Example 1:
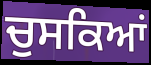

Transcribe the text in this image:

ਚੁਸਕਿਆਂ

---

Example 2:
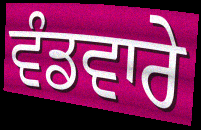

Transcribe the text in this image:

ਵੰਡਵਾਰੇ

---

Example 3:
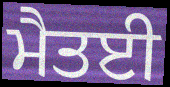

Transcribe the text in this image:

ਮੈਤਈ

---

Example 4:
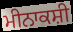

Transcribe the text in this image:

ਮੀਨਾਕਸ਼ੀ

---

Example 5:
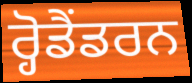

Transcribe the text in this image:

ਰ੍ਹੋਡੈਂਡਰਨ